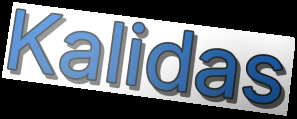
Kalidas